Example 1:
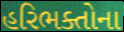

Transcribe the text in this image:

હરિભક્તોના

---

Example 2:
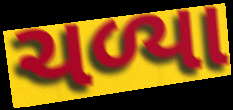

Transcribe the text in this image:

ચળ્યા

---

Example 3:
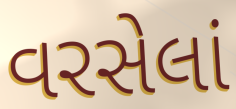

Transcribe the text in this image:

વરસેલાં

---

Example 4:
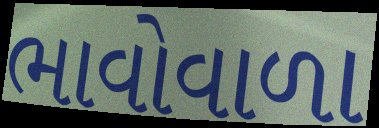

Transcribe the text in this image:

ભાવોવાળા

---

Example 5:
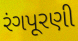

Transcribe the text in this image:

રંગપૂરણી